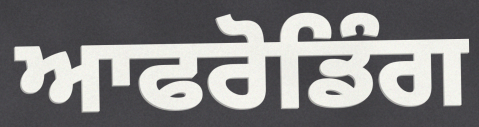
ਆਫਰੋਡਿੰਗ